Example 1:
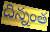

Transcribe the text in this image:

దిన్నంత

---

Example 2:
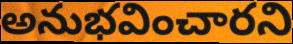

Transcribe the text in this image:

అనుభవించారని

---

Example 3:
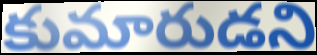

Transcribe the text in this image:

కుమారుడని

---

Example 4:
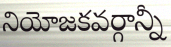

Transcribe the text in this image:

నియోజకవర్గాన్నీ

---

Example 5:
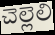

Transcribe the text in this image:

చెల్లెలి